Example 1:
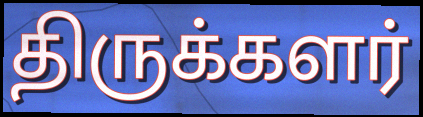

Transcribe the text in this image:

திருக்களர்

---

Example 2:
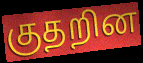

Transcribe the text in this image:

குதறின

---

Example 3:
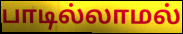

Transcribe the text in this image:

பாடில்லாமல்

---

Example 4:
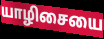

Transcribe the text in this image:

யாழிசையை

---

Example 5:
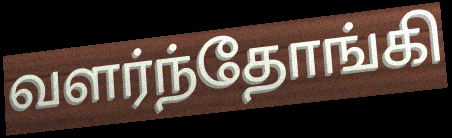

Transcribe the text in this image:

வளர்ந்தோங்கி